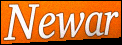
Newar